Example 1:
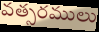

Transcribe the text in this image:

వత్సరములు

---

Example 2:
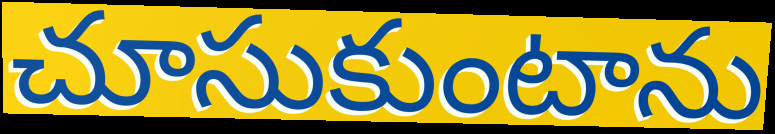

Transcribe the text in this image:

చూసుకుంటాను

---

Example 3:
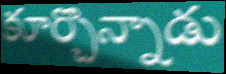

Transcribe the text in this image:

కూర్చొన్నాడు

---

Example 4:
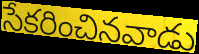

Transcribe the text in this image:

సేకరించినవాడు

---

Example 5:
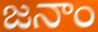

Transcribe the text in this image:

జనాం